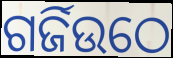
ଗର୍ଜିଉଠେ